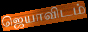
ஜெயாவிடம்